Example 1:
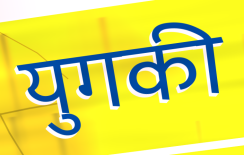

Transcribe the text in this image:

युगकी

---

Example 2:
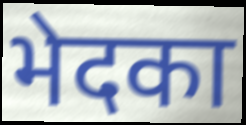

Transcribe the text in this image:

भेदका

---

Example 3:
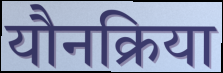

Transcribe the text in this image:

यौनक्रिया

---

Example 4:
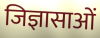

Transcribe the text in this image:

जिज्ञासाओं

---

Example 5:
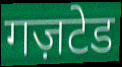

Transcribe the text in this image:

गज़टेड